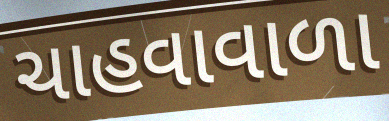
ચાહવાવાળા